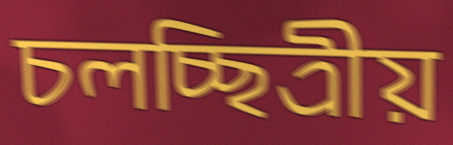
চলচ্ছিত্ৰীয়